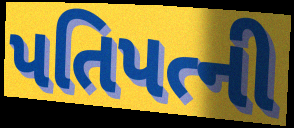
પતિપત્ની